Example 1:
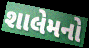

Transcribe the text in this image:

શાલેમનો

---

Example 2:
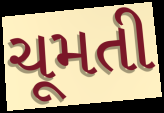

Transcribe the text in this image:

ચૂમતી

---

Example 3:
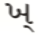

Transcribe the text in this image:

ખ્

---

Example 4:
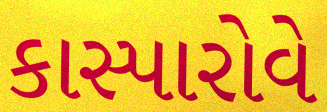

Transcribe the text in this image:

કાસ્પારોવે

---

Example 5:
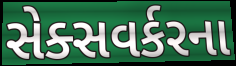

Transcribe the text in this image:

સેક્સવર્કરના